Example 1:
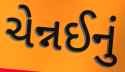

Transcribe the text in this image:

ચેન્નઈનું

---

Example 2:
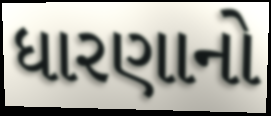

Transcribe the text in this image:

ધારણાનો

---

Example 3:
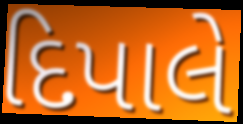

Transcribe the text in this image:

દિપાલે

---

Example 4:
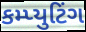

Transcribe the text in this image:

કમ્પ્યુટિંગ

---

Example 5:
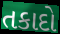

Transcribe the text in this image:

તકાદો